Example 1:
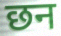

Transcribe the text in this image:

छन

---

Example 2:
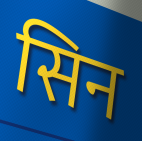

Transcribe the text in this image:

सिन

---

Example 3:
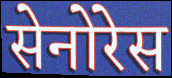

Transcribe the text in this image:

सेनोरेस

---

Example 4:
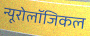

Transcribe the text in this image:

न्यूरोलॉजिकल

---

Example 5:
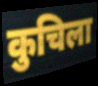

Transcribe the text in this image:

कुचिला